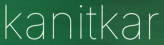
kanitkar